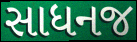
સાધનજ